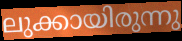
ലുക്കായിരുന്നു